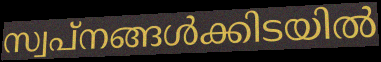
സ്വപ്നങ്ങൾക്കിടയിൽ